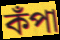
কঁপা